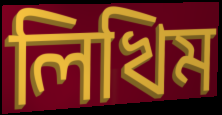
লিখিম